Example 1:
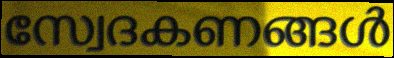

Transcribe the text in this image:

സ്വേദകണങ്ങൾ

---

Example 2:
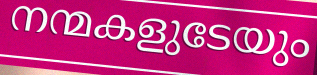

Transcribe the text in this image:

നന്മകളുടേയും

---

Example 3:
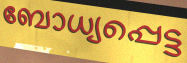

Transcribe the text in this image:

ബോധ്യപ്പെട്ട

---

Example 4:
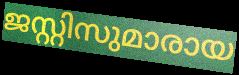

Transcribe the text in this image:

ജസ്റ്റിസുമാരായ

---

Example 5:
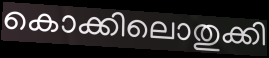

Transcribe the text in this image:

കൊക്കിലൊതുക്കി